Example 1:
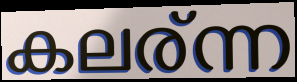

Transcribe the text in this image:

കലര്ന്ന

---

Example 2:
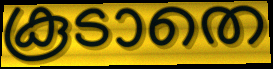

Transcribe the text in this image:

കൂടാതെ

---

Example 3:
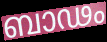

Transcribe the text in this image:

ബാഢം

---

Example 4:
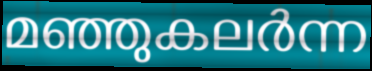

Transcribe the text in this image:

മഞ്ഞുകലർന്ന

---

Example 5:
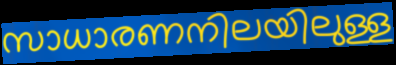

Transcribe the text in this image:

സാധാരണനിലയിലുള്ള